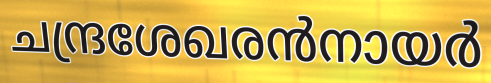
ചന്ദ്രശേഖരൻനായർ